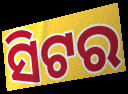
ସିଟର